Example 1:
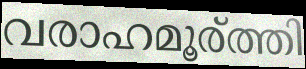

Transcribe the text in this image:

വരാഹമൂര്ത്തി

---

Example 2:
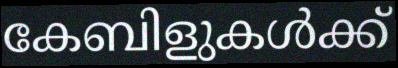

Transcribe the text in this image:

കേബിളുകൾക്ക്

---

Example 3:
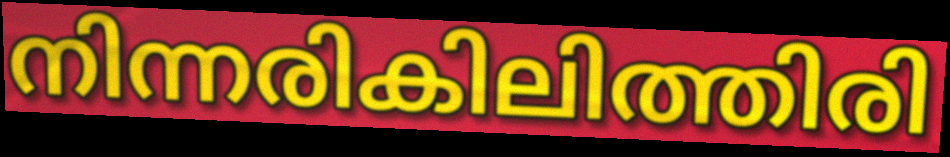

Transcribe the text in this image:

നിന്നരികിലിത്തിരി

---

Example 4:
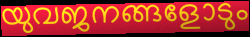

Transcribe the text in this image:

യുവജനങ്ങളോടും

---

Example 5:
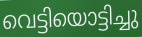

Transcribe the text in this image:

വെട്ടിയൊട്ടിച്ചു